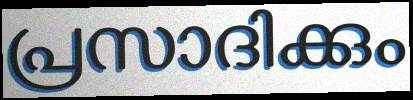
പ്രസാദിക്കും